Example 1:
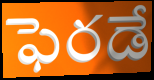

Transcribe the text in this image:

ఫెరడే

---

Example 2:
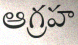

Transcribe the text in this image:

ఆగ్రహ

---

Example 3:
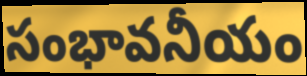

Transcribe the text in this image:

సంభావనీయం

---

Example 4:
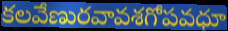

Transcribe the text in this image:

కలవేణురవావశగోపవధూ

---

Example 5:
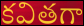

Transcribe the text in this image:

కవితగా